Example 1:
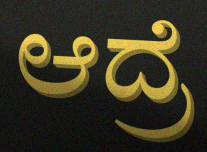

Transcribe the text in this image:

ಆದ್ರೆ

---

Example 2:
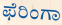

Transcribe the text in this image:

ಫೆರಿಂಗಾ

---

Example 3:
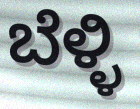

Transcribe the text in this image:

ಬೆಳ್ಳಿ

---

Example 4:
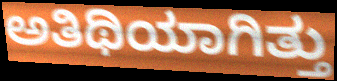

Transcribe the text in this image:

ಅತಿಥಿಯಾಗಿತ್ತು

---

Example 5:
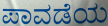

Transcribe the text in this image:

ಪಾವಡೆಯ